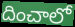
దించాలో